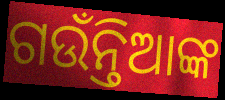
ଗଉଁନ୍ତିଆଙ୍କ